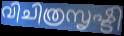
വിചിത്രസൃഷ്ടി